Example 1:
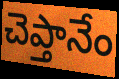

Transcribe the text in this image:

చెప్తానేం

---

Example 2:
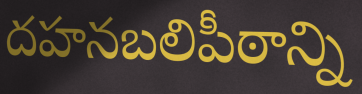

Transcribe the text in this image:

దహనబలిపీఠాన్ని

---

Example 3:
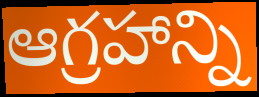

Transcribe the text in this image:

ఆగ్రహాన్ని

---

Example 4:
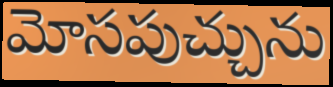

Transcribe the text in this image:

మోసపుచ్చును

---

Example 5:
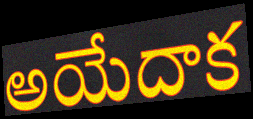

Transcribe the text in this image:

అయేదాక